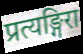
प्रत्यङ्गिरा